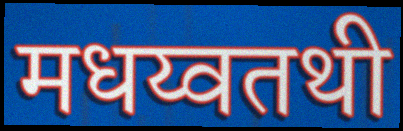
मधय्वतथी